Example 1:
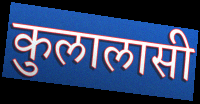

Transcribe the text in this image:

कुलालासी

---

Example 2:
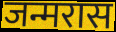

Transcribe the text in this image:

जन्मरास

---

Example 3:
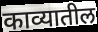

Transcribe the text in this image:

काव्यातील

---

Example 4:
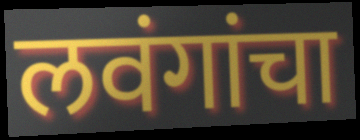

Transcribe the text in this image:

लवंगांचा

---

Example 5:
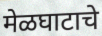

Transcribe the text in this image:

मेळघाटाचे